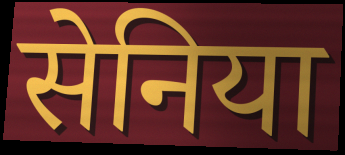
सेनिया